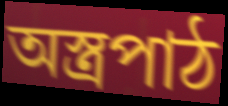
অস্ত্রপাঠ